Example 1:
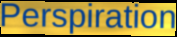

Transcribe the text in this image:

Perspiration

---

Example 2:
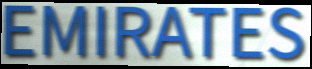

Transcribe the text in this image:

EMIRATES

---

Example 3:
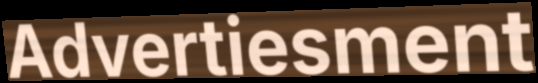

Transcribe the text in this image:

Advertiesment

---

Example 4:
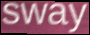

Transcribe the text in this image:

sway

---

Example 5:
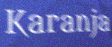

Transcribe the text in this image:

Karanja